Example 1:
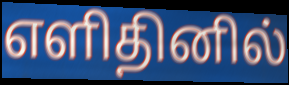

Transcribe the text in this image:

எளிதினில்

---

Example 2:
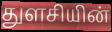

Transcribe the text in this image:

துளசியின்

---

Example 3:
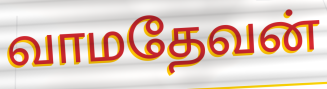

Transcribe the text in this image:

வாமதேவன்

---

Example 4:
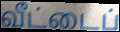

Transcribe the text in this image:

வீட்டைப்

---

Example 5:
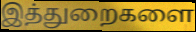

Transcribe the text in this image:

இத்துறைகளை